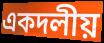
একদলীয়